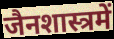
जैनशास्त्रमें